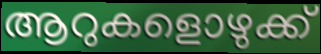
ആറുകളൊഴുക്ക്